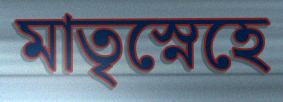
মাতৃস্নেহে